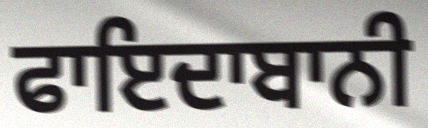
ਫਾਇਦਾਬਾਨੀ